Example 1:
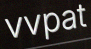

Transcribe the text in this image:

vvpat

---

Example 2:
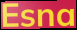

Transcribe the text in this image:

Esna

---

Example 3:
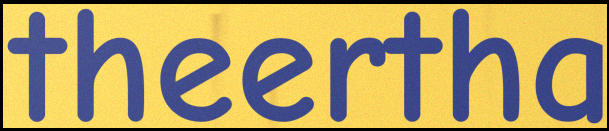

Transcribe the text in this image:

theertha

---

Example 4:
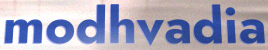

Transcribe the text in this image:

modhvadia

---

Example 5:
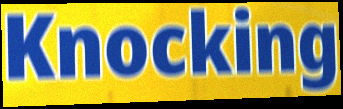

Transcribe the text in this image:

Knocking